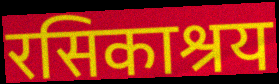
रसिकाश्रय